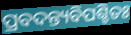
ପ୍ରବଦନ୍ତ୍ୟବିପଶ୍ଚିତଃ